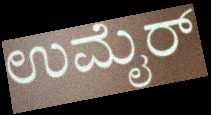
ಉಮೈರ್